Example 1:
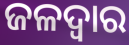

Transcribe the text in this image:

ଜଳଦ୍ୱାର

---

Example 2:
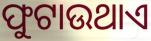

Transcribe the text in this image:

ଫୁଟାଉଥାଏ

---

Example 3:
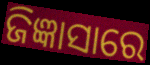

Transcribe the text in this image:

ଜିଜ୍ଞାସାରେ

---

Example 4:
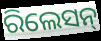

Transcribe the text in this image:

ରିଲେସନ୍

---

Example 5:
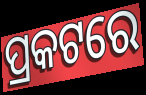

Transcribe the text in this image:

ପ୍ରକଟରେ